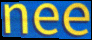
nee